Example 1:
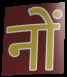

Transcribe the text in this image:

नों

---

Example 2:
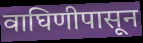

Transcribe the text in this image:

वाघिणीपासून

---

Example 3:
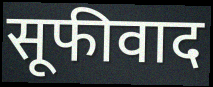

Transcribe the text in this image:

सूफीवाद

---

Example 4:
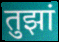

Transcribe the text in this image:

तुझां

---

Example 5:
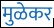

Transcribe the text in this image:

मुळेकर